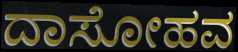
ದಾಸೋಹವ